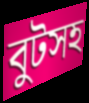
বুটসহ